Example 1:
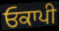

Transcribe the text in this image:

ਓਕਾਪੀ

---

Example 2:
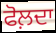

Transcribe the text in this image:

ਫੋਲ਼ਦਾ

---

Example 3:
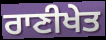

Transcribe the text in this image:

ਰਾਣੀਖੇਤ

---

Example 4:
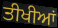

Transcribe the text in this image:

ਤੀਖੀਆਂ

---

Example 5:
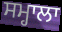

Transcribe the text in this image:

ਸਮ੍ਹ੍ਹਾਲਾ